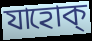
যাহোক্